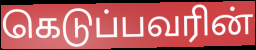
கெடுப்பவரின்